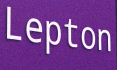
Lepton